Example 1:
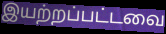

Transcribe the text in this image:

இயற்றப்பட்டவை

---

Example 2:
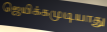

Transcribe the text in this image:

ஜெயிக்கமுடியாது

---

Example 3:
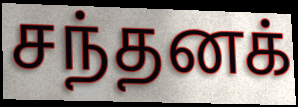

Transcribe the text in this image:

சந்தனக்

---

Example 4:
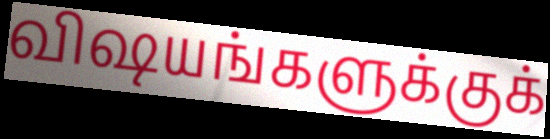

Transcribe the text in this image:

விஷயங்களுக்குக்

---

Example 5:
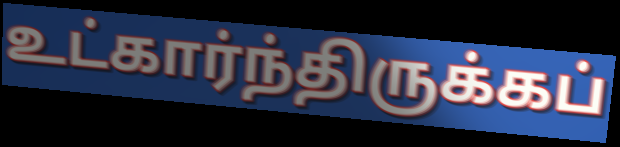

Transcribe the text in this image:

உட்கார்ந்திருக்கப்